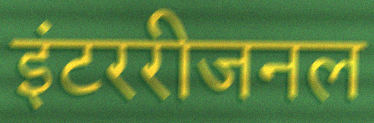
इंटररीजनल